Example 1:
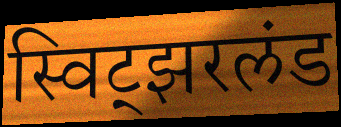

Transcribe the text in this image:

स्विट्झरलंड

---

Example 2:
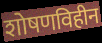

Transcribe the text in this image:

शोषणविहीन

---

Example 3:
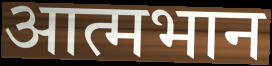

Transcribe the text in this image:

आत्मभान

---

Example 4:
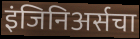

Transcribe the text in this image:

इंजिनिअर्सचा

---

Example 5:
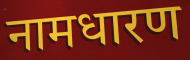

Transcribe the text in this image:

नामधारण